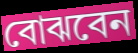
বোঝবেন